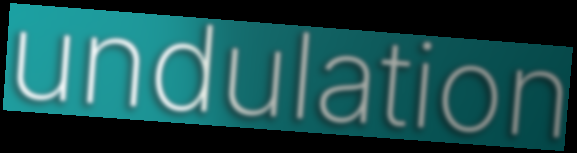
undulation